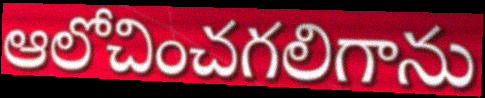
ఆలోచించగలిగాను